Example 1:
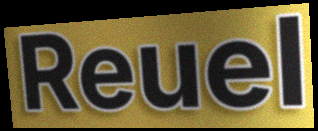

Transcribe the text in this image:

Reuel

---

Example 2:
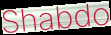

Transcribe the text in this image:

Shabdo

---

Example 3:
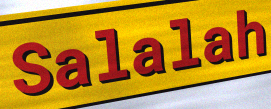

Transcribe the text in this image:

Salalah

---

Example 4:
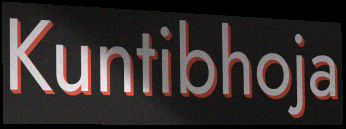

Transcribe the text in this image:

Kuntibhoja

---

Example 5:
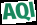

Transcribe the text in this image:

AQI